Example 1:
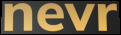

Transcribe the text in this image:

nevr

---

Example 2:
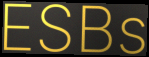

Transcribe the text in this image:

ESBs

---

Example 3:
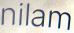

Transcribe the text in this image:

nilam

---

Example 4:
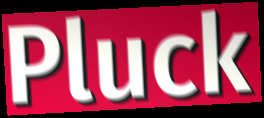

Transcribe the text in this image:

Pluck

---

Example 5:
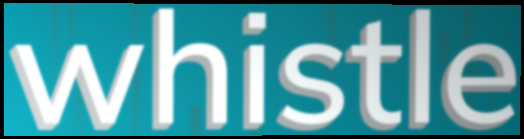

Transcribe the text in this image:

whistle